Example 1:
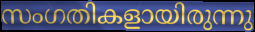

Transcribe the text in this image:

സംഗതികളായിരുന്നു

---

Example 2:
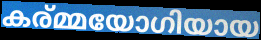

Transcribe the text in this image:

കര്മ്മയോഗിയായ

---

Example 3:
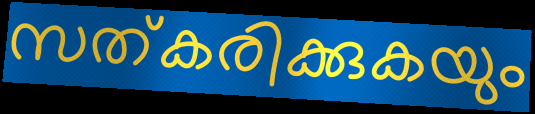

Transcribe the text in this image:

സത്കരിക്കുകയും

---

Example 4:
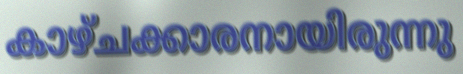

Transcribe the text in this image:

കാഴ്ചക്കാരനായിരുന്നു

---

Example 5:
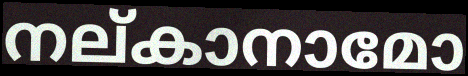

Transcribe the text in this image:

നല്കാനാമോ